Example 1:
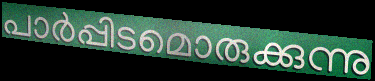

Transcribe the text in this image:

പാർപ്പിടമൊരുക്കുന്നു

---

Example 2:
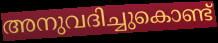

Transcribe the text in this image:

അനുവദിച്ചുകൊണ്ട്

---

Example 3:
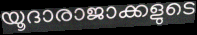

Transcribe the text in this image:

യൂദാരാജാക്കളുടെ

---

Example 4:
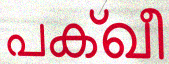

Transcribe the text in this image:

പക്ഖീ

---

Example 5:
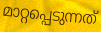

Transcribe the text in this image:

മാറ്റപ്പെടുന്നത്